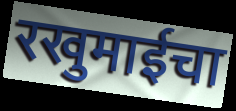
रखुमाईचा